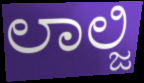
ಲಾಲ್ಜಿ